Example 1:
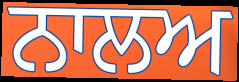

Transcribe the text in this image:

ਨਾਲਅ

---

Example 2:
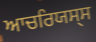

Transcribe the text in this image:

ਆਚਰਿਯਸ੍ਸ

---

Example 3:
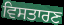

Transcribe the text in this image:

ਵਿਸਤਾਰਣ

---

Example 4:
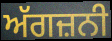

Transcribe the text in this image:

ਅੱਗਜ਼ਨੀ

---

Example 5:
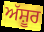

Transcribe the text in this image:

ਅੱਸ਼ੂਰ